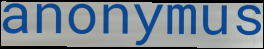
anonymus